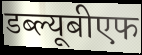
डब्ल्यूबीएफ